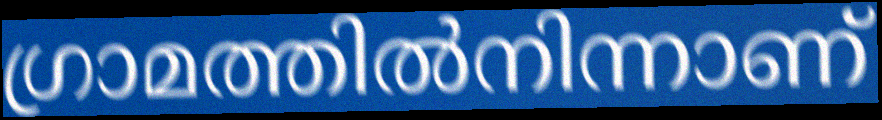
ഗ്രാമത്തിൽനിന്നാണ്